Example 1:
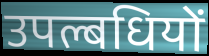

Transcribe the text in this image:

उपल्बधियों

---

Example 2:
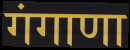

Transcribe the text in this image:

गंगाणा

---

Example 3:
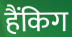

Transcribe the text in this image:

हैंकिग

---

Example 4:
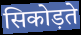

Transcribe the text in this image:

सिकोड़ते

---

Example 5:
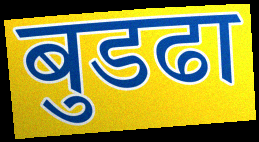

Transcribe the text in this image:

बुडढा